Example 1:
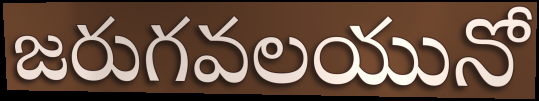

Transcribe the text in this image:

జరుగవలయునో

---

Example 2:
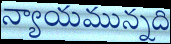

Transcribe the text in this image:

న్యాయమున్నది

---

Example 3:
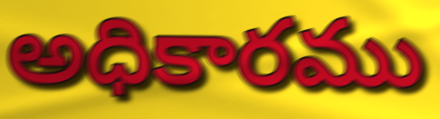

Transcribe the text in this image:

అధికారము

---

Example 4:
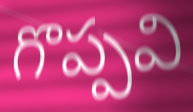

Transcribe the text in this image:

గొప్పవి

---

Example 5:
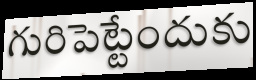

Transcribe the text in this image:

గురిపెట్టేందుకు